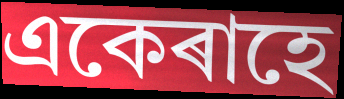
একেৰাহে